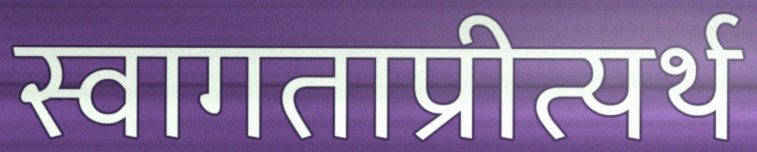
स्वागताप्रीत्यर्थ